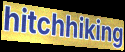
hitchhiking